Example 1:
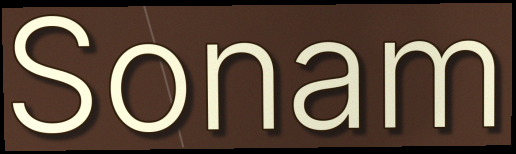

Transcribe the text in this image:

Sonam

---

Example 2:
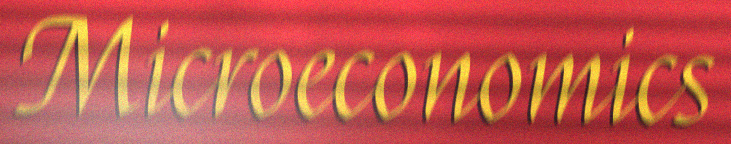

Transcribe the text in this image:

Microeconomics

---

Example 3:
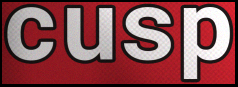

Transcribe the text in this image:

cusp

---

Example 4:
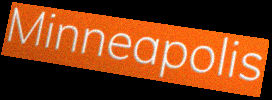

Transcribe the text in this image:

Minneapolis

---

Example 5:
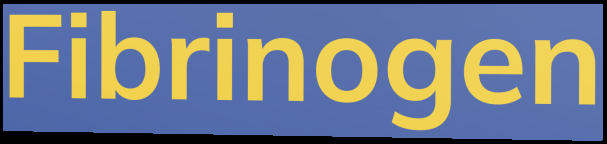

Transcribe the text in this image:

Fibrinogen